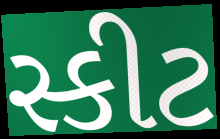
સ્કીટ